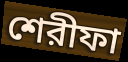
শেরীফা